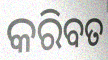
କରିବତ